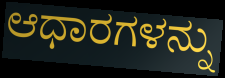
ಆಧಾರಗಳನ್ನು